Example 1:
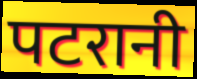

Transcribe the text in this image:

पटरानी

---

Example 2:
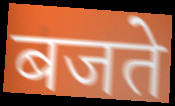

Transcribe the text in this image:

बजते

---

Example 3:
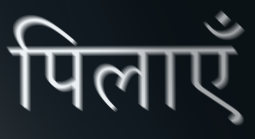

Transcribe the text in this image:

पिलाएँ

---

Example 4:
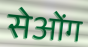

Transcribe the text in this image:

सेओंग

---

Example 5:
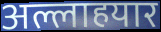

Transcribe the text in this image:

अल्लाहयार